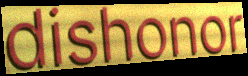
dishonor